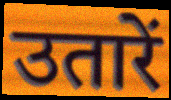
उतारें